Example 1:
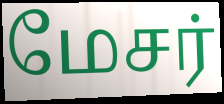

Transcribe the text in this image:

மேசர்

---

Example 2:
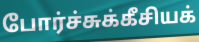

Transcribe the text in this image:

போர்ச்சுக்கீசியக்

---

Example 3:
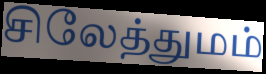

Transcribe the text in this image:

சிலேத்துமம்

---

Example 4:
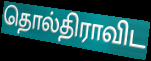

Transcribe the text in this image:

தொல்திராவிட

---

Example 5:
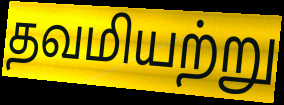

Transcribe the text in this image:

தவமியற்று